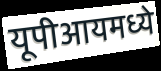
यूपीआयमध्ये